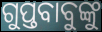
ଗୁପ୍ତବାବୁଙ୍କୁ